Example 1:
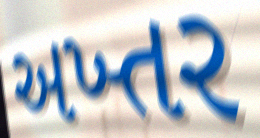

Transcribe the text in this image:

અખ્તર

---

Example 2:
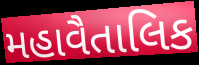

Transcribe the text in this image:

મહાવૈતાલિક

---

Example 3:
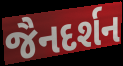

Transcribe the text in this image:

જૈનદર્શન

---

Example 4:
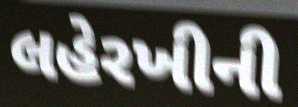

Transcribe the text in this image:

લહેરખીની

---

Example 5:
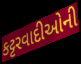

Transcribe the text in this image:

કટ્ટરવાદીઓની